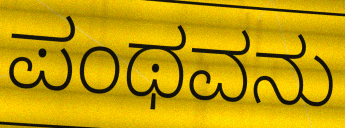
ಪಂಥವನು